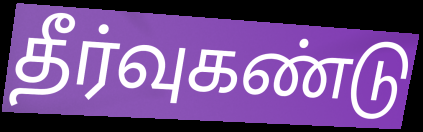
தீர்வுகண்டு